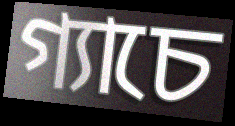
গ্যাচে